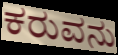
ಕರುವನು